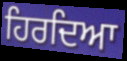
ਹਿਰਦਿਆ